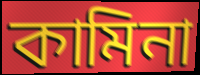
কামিনা